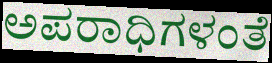
ಅಪರಾಧಿಗಳಂತೆ